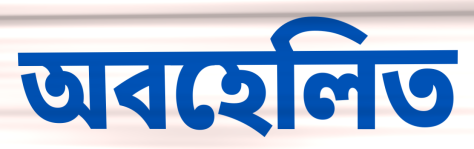
অবহেলিত